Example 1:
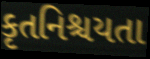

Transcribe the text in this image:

કૃતનિશ્ચયતા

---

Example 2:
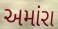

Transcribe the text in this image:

અમાંરા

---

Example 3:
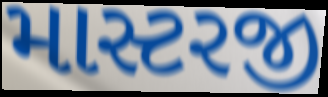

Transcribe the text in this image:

માસ્ટરજી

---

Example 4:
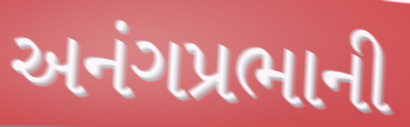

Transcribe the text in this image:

અનંગપ્રભાની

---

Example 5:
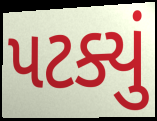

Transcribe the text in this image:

પટક્યું